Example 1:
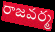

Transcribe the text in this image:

రాజవర్మ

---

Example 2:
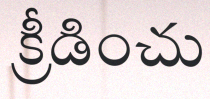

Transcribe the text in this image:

క్రీడించు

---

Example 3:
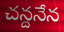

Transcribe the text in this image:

చన్దనేన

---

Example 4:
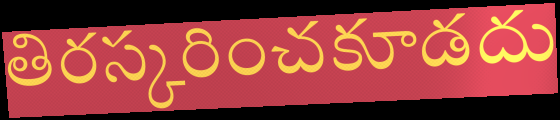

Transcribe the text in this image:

తిరస్కరించకూడదు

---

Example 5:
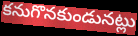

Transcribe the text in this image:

కనుగొనకుండునట్లు